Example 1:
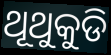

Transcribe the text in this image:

ଥୂଥୁକୁଡି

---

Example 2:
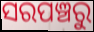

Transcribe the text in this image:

ସରପଞ୍ଚରୁ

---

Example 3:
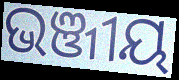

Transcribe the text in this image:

ଭଞ୍ଜୀୟ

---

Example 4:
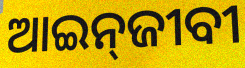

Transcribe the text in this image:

ଆଇନ୍‌ଜୀବୀ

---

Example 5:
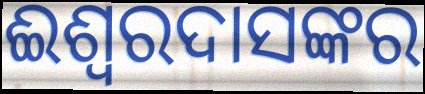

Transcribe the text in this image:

ଈଶ୍ଵରଦାସଙ୍କର